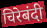
चिरेबंदी